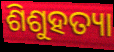
ଶିଶୁହତ୍ୟା